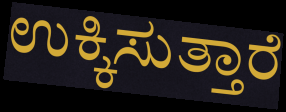
ಉಕ್ಕಿಸುತ್ತಾರೆ